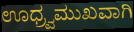
ಊಧ್ರ್ವಮುಖವಾಗಿ